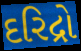
દરિદ્રો